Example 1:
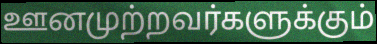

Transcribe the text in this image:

ஊனமுற்றவர்களுக்கும்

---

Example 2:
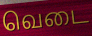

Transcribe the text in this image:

வெடை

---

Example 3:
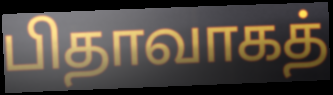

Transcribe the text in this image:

பிதாவாகத்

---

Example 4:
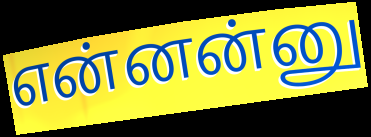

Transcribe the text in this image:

என்னன்னு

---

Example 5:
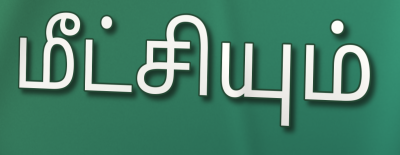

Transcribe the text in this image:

மீட்சியும்